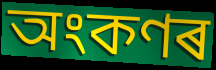
অংকণৰ